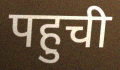
पहुची